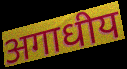
अगाधीय